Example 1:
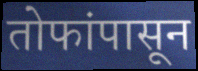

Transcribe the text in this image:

तोफांपासून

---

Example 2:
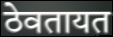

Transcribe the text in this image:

ठेवतायत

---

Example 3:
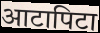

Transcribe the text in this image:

आटापिटा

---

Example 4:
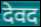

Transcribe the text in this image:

देवद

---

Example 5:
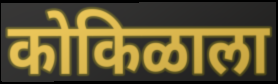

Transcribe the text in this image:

कोकिळाला